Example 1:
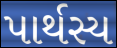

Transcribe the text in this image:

પાર્થસ્ય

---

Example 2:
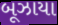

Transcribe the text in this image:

બૂઝાયા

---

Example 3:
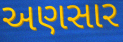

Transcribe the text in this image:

અણસાર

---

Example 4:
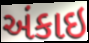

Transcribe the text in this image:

અંકાઇ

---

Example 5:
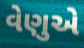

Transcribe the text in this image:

વેણુએ